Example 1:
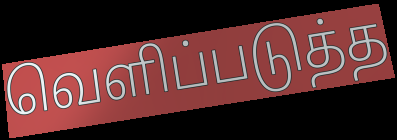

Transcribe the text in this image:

வெளிப்படுத்த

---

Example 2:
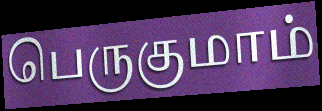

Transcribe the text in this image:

பெருகுமாம்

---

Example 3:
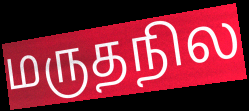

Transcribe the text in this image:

மருதநில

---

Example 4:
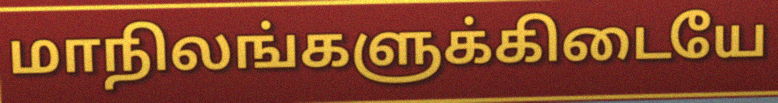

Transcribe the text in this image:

மாநிலங்களுக்கிடையே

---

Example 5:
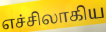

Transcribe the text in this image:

எச்சிலாகிய